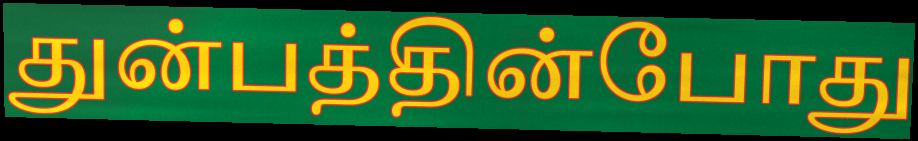
துன்பத்தின்போது